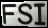
FSI